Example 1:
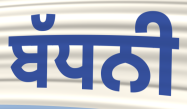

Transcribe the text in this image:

ਬੱਧਨੀ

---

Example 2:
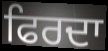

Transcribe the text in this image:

ਫਿਰਦਾ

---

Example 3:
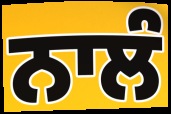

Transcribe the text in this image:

ਨਾਲੰ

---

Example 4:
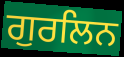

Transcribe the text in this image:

ਗੁਰਲਿਨ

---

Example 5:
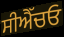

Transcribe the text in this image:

ਸੀਐੱਚਓ